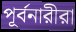
পূর্বনারীরা